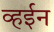
व्हईन